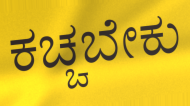
ಕಚ್ಚಬೇಕು